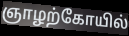
ஞாழற்கோயில்